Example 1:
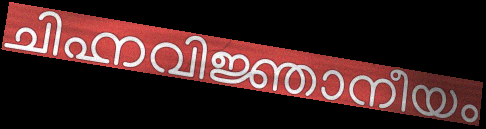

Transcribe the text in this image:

ചിഹ്നവിജ്ഞാനീയം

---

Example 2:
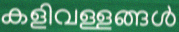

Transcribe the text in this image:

കളിവള്ളങ്ങൾ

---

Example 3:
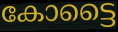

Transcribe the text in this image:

കോട്ടൈ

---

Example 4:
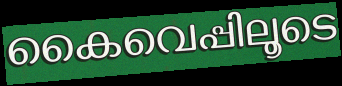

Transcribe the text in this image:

കൈവെപ്പിലൂടെ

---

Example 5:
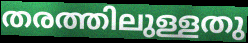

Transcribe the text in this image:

തരത്തിലുള്ളതു